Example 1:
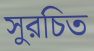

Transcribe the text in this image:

সুরচিত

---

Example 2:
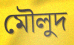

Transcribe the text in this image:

মৌলুদ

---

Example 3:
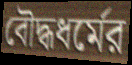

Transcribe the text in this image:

বৌদ্ধধর্মের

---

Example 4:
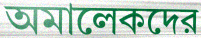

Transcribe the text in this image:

অমালেকদের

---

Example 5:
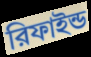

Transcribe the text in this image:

রিফাইন্ড